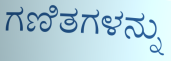
ಗಣಿತಗಳನ್ನು